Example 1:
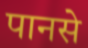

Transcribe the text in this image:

पानसे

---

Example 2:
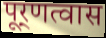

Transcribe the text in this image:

पूर्णत्वास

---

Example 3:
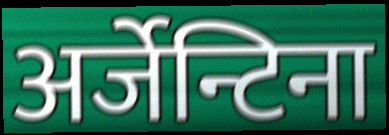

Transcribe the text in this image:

अर्जेन्टिना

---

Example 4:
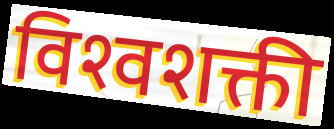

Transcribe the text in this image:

विश्वशक्ती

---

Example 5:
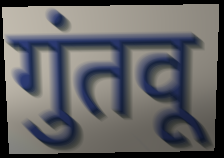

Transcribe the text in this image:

गुंतवू